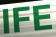
IFE